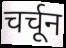
चर्चून